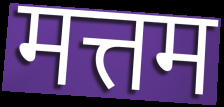
मत्तम